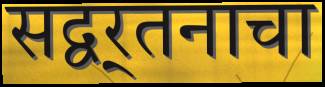
सद्वर्तनाचा